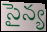
సైన్య